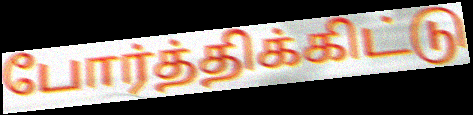
போர்த்திக்கிட்டு